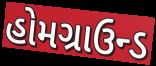
હોમગ્રાઉન્ડ